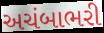
અચંબાભરી